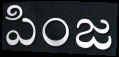
పింజ